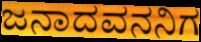
ಜನಾದವನನಿಗ